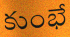
కుంభే